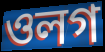
ওলগ